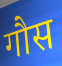
गौस